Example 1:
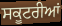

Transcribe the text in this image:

ਸਕੂਟਰੀਆਂ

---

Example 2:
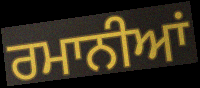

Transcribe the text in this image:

ਰਮਾਨੀਆਂ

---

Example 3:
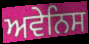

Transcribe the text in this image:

ਅਵੇਨਿਸ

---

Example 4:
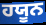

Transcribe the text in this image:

ਹਯੂਨ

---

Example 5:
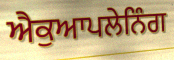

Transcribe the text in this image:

ਐਕੁਆਪਲੇਨਿੰਗ